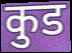
कुड